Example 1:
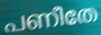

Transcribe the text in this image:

പണീതേ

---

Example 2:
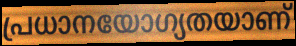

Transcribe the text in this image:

പ്രധാനയോഗ്യതയാണ്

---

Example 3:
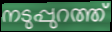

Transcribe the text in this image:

നടുപ്പുറത്ത്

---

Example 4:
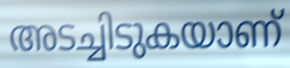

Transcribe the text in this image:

അടച്ചിടുകയാണ്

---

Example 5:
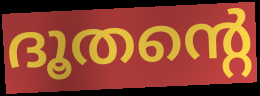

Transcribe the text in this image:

ദൂതന്റെ